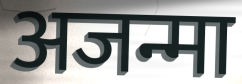
अजन्मा